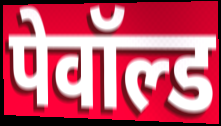
पेवॉल्ड